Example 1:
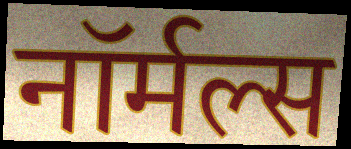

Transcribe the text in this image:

नॉर्मल्स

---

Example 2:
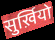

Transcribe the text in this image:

सुर्ख़ियो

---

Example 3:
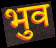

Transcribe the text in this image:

भुव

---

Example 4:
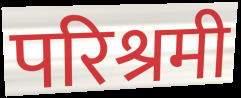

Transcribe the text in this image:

परिश्रमी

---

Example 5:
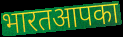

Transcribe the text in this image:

भारतआपका